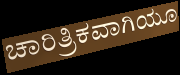
ಚಾರಿತ್ರಿಕವಾಗಿಯೂ